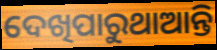
ଦେଖିପାରୁଥାଆନ୍ତି